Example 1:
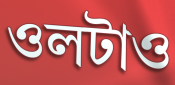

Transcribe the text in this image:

ওলটাও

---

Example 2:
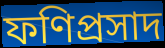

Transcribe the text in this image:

ফণিপ্রসাদ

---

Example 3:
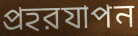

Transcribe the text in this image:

প্রহরযাপন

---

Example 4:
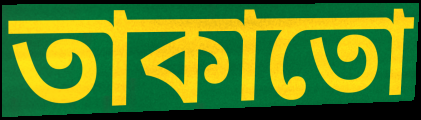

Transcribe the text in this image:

তাকাতো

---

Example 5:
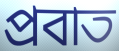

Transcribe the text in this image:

প্রবাত